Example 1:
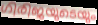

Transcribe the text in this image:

ഗിരിജയുടെയും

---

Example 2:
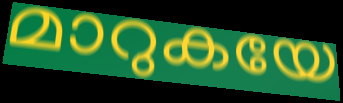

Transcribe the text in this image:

മാറുകയേ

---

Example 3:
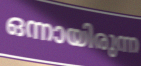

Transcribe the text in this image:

ഒന്നായിരുന്ന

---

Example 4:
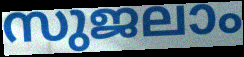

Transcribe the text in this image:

സുജലാം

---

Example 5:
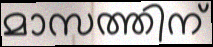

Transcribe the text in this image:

മാസത്തിന്